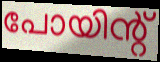
പോയിന്റ്